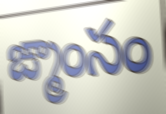
ఙ్మాంసం